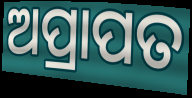
ଅପ୍ରାପତ